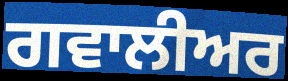
ਗਵਾਲੀਅਰ